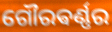
ଗୌରଵର୍ଣ୍ଣର